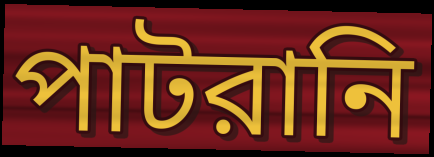
পাটরানি